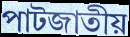
পাটজাতীয়